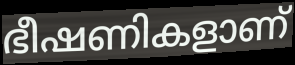
ഭീഷണികളാണ്